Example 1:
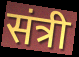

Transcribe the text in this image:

संत्री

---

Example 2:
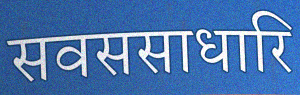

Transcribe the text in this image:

सवससाधारि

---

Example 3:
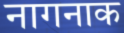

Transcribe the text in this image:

नागनाक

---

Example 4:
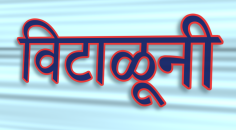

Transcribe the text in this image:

विटाळूनी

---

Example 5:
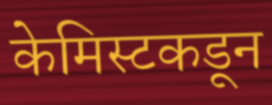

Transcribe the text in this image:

केमिस्टकडून